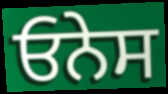
ਓਨੇਸ